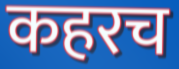
कहरच